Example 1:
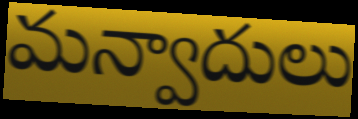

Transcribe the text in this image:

మన్వాదులు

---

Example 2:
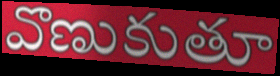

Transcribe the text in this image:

వొణుకుతూ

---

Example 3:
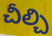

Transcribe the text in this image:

చీల్చి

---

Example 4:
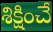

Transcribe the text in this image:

శిక్షించే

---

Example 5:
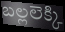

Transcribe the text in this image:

బల్లలెక్కి